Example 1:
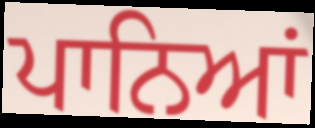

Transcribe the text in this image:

ਪਾਨਿਆਂ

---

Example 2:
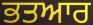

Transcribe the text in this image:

ਭਤਆਰ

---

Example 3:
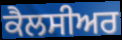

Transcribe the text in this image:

ਕੈਲਸੀਅਰ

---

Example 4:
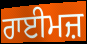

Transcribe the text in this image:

ਰਾਈਮਜ਼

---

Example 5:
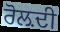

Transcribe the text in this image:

ਰੋਲ਼ਦੀ